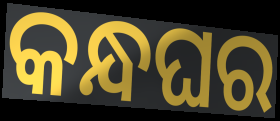
କନ୍ଧଘର